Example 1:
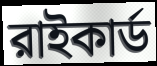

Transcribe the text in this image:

রাইকার্ড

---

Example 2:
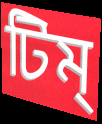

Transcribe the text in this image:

টিম্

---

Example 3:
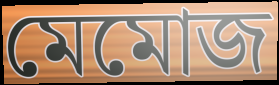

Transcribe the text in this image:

মেমোজ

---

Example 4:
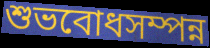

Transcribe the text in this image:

শুভবোধসম্পন্ন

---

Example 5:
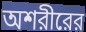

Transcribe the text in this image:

অশরীরের